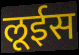
लूईस